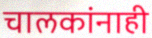
चालकांनाही